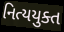
નિત્યયુક્ત